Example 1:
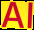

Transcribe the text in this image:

AI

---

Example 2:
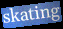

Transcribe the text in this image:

skating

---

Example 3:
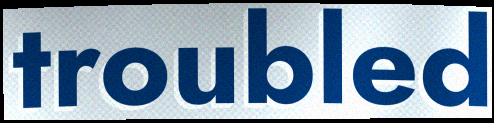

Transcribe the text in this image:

troubled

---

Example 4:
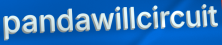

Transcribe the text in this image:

pandawillcircuit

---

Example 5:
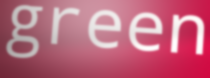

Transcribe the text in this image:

green